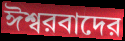
ঈশ্বরবাদের